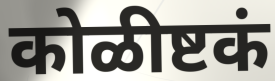
कोळीष्टकं